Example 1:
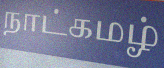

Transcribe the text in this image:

நாட்கமழ்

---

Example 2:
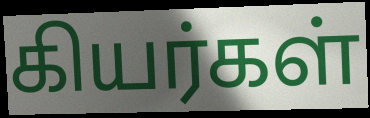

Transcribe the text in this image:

கியர்கள்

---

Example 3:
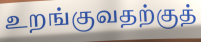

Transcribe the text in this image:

உறங்குவதற்குத்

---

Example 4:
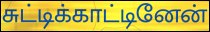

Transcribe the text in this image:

சுட்டிக்காட்டினேன்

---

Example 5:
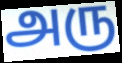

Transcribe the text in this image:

அரு